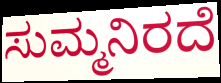
ಸುಮ್ಮನಿರದೆ